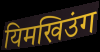
यिमखिउंग